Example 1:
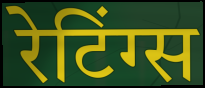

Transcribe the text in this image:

रेटिंग्स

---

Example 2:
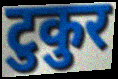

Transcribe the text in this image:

टुकुर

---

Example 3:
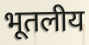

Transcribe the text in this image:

भूतलीय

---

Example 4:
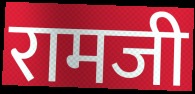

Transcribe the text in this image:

रामजी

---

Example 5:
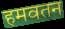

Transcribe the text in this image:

हमवतन